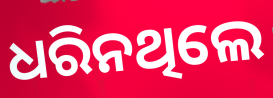
ଧରିନଥିଲେ